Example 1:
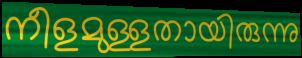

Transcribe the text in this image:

നീളമുള്ളതായിരുന്നു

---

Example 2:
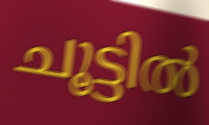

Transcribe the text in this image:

ചൂട്ടിൽ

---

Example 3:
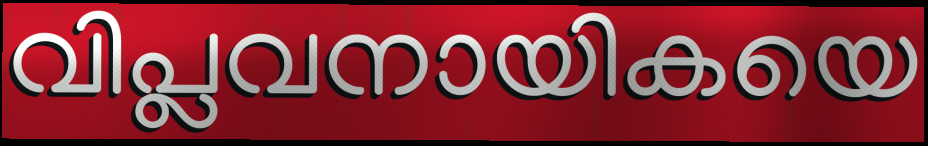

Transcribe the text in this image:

വിപ്ലവനായികയെ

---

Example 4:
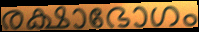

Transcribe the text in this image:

രക്ഷാഭോഗം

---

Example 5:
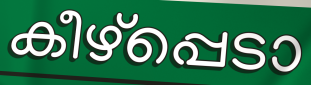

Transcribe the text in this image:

കീഴ്പ്പെടാ